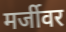
मर्जीवर